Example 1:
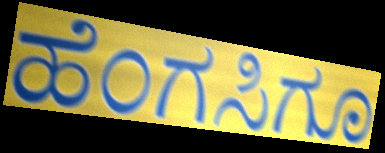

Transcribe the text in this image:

ಹೆಂಗಸಿಗೂ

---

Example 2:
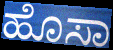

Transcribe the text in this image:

ಹೊಸಾ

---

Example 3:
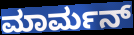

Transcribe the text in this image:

ಮಾರ್ಮನ್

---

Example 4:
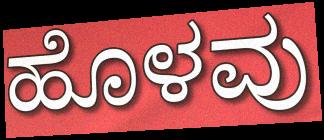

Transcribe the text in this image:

ಹೊಳವು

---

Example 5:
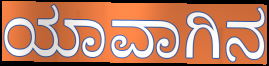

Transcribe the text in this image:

ಯಾವಾಗಿನ